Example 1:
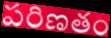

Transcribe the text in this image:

పరిణతం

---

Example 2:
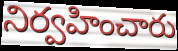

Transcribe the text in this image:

నిర్వహించారు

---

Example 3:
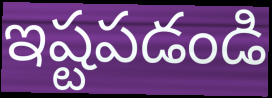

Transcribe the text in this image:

ఇష్టపడండి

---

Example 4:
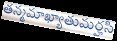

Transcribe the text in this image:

తన్మమాఖ్యాతుమర్హసి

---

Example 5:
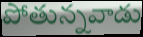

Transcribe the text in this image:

పోతున్నవాడు